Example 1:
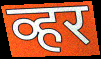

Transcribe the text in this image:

व्हर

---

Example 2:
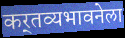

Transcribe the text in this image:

कर्तव्यभावनेला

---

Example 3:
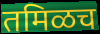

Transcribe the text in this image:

तमिळच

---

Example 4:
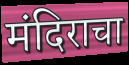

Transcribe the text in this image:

मंदिराचा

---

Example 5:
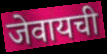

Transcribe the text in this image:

जेवायची